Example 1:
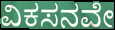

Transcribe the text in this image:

ವಿಕಸನವೇ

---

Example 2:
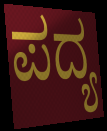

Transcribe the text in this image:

ಪದ್ಯ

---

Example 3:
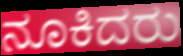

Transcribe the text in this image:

ನೂಕಿದರು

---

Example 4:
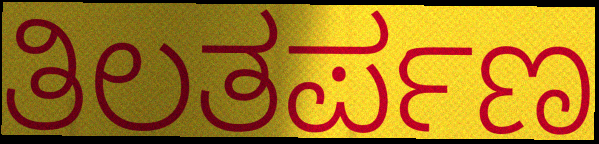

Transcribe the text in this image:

ತಿಲತರ್ಪಣ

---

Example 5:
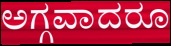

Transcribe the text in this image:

ಅಗ್ಗವಾದರೂ